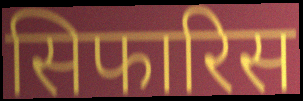
सिफारिस